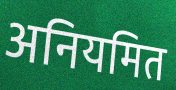
अनियमित